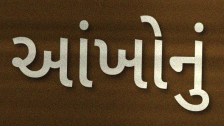
આંખોનું